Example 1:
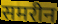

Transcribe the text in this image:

समरीन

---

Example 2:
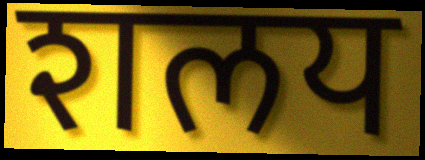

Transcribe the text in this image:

शलय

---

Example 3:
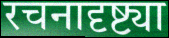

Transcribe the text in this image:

रचनादृष्ट्या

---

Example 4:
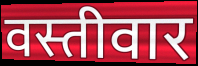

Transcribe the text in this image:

वस्तीवार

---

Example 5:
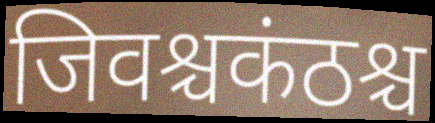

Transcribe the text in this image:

जिवश्चकंठश्च